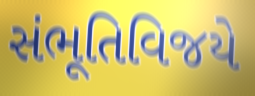
સંભૂતિવિજયે